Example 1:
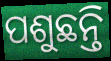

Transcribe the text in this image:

ପଶୁଛନ୍ତି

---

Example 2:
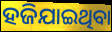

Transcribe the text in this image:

ହଜିଯାଇଥିବା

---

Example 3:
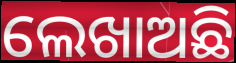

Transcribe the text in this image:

ଲେଖାଅଛି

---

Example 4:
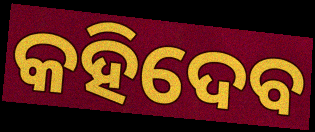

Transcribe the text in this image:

କହିଦେବ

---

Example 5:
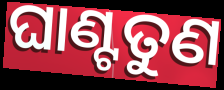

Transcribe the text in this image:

ଘାଣ୍ଟତୁଣ